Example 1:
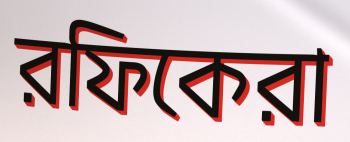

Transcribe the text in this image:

রফিকেরা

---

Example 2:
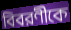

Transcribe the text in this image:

বিবরণীকে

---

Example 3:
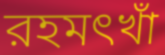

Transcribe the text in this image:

রহমৎখাঁ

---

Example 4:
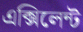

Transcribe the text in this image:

এক্সিলেন্ট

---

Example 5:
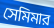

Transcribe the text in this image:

সেমিমার